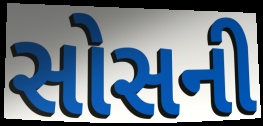
સોસની